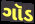
ગૉડ